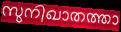
സുനിഖാതത്താ